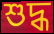
শুদ্ধ